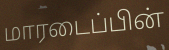
மாரடைப்பின்